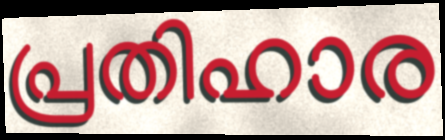
പ്രതിഹാര